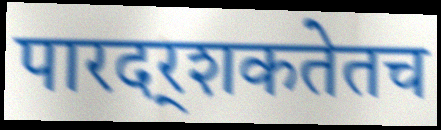
पारदर्शकतेतच